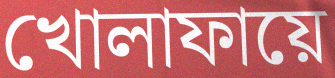
খোলাফায়ে